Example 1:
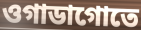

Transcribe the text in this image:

ওগাডাগোতে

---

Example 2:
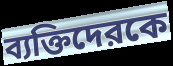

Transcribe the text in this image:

ব্যক্তিদেরকে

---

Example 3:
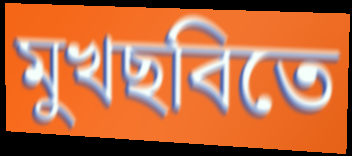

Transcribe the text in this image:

মুখছবিতে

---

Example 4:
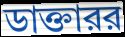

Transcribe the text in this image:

ডাক্তারর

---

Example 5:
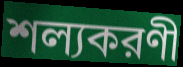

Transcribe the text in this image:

শল্যকরণী